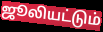
ஜூலியட்டும்